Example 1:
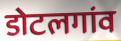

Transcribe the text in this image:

डोटलगांव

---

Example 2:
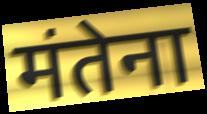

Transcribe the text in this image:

मंतेना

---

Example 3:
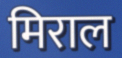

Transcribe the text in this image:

मिराल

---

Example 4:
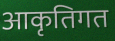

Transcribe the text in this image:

आकृतिगत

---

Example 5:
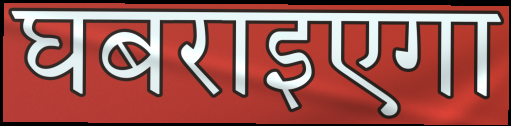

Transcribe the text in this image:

घबराइएगा